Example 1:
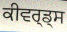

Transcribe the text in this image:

ਕੀਵਰ੍ਡ੍ਸ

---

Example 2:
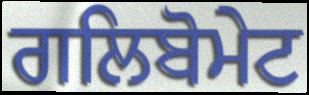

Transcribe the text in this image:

ਗਲਿਬੋਮੇਟ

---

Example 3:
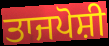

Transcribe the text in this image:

ਤਾਜਪੋਸ਼ੀ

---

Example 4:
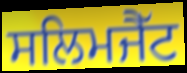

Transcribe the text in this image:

ਸਲਿਮਜੈੱਟ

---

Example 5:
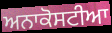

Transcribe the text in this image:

ਅਨਾਕੋਸਟੀਆ